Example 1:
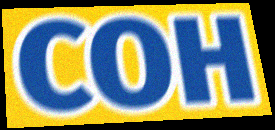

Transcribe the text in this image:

COH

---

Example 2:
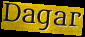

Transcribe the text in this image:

Dagar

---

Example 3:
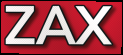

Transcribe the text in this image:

ZAX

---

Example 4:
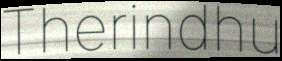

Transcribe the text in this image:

Therindhu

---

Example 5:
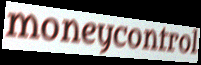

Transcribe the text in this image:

moneycontrol